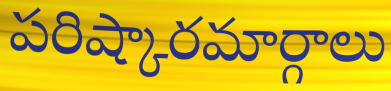
పరిష్కారమార్గాలు